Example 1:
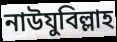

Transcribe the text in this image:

নাউযুবিল্লাহ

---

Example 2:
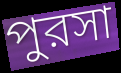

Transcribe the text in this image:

পুরসা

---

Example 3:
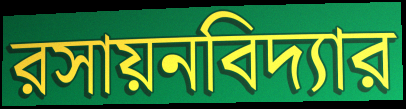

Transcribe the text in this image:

রসায়নবিদ্যার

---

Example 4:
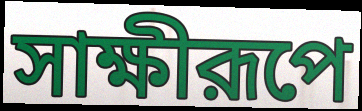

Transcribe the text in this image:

সাক্ষীরূপে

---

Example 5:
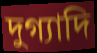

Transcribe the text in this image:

দুগ্যাদি